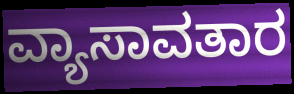
ವ್ಯಾಸಾವತಾರ